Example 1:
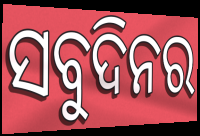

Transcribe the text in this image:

ସବୁଦିନର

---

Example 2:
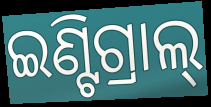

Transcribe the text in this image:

ଇଣ୍ଟିଗ୍ରାଲ୍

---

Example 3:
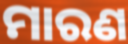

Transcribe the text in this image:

ମାରଣ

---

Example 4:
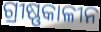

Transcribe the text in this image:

ଗ୍ରୀଷ୍ଣକାଳୀନ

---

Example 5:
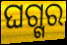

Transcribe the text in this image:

ଘଗ୍ଗର